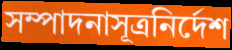
সম্পাদনাসূত্রনির্দেশ